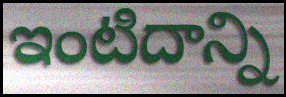
ఇంటిదాన్ని